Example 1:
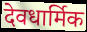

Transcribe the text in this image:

देवधार्मिक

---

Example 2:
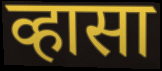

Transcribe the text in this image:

व्हासा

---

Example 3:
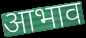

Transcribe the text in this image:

आभाव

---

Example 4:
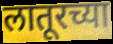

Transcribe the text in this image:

लातूरच्या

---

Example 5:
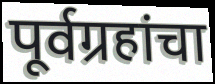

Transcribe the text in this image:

पूर्वग्रहांचा